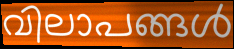
വിലാപങ്ങൾ